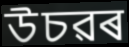
উচৱৰ